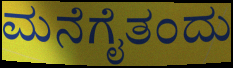
ಮನೆಗೈತಂದು